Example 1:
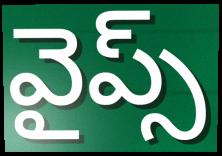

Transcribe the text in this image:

వైప్స్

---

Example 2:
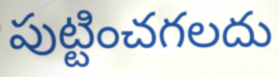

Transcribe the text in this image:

పుట్టించగలదు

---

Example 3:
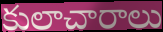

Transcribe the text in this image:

కులాచారాలు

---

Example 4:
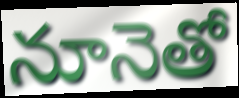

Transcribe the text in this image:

నూనెతో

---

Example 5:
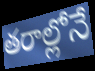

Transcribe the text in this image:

తరాల్లోనే